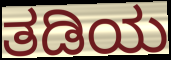
ತಡಿಯ